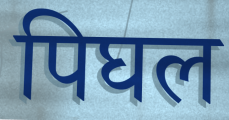
पिघल